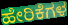
ಹೇರಿಕೆಗಳ